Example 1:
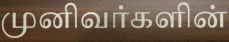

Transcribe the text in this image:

முனிவர்களின்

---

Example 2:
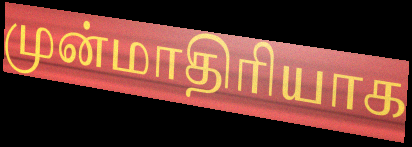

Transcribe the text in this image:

முன்மாதிரியாக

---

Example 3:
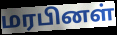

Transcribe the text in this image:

மரபினள்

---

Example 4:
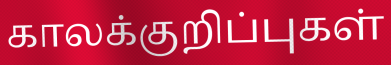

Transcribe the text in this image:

காலக்குறிப்புகள்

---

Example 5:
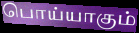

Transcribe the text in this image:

பொய்யாகும்